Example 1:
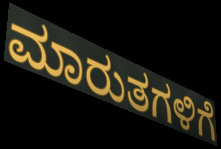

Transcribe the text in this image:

ಮಾರುತಗಳಿಗೆ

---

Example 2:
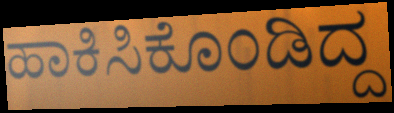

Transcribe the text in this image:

ಹಾಕಿಸಿಕೊಂಡಿದ್ದ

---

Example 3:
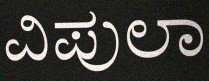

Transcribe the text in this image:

ವಿಪುಲಾ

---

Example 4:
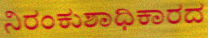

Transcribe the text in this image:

ನಿರಂಕುಶಾಧಿಕಾರದ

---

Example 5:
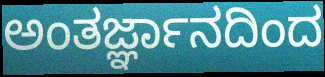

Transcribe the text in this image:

ಅಂತರ್ಜ್ಞಾನದಿಂದ